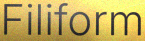
Filiform